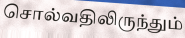
சொல்வதிலிருந்தும்